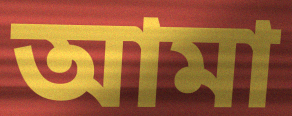
আমা